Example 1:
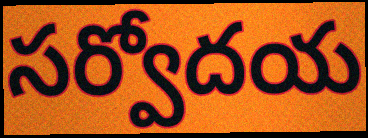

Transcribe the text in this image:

సర్వోదయ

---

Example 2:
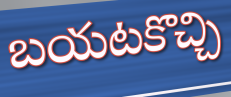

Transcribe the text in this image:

బయటకొచ్చి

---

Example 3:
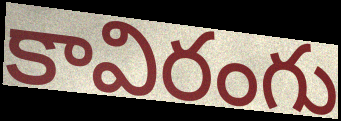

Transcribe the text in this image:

కావిరంగు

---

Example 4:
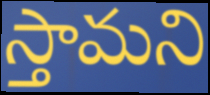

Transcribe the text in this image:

స్తామని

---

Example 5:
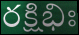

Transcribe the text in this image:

రక్షిభిః